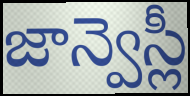
జాన్వెస్లీ